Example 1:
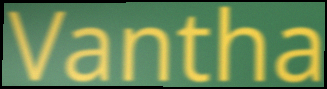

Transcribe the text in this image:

Vantha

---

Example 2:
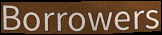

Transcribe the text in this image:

Borrowers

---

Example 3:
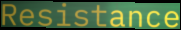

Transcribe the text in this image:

Resistance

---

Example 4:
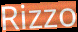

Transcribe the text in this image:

Rizzo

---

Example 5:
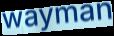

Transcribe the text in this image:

wayman